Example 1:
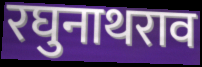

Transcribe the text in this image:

रघुनाथराव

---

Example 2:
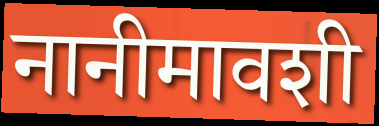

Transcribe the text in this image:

नानीमावशी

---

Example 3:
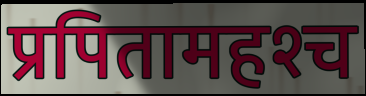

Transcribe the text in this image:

प्रपितामहश्च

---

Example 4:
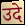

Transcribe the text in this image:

उदे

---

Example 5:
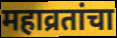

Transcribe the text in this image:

महाव्रतांचा